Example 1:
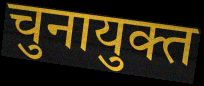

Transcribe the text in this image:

चुनायुक्त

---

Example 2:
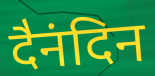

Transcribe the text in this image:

दैनंदिन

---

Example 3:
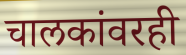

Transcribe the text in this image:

चालकांवरही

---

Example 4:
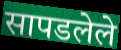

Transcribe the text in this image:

सापडलेले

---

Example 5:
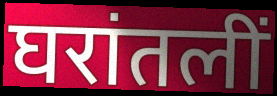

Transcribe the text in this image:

घरांतलीं